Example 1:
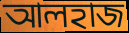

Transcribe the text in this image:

আলহাজ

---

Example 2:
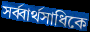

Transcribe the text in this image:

সর্ব্বার্থসাধিকে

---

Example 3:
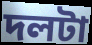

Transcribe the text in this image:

দলটা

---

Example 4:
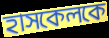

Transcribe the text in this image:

হাসকেলকে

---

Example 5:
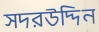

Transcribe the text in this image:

সদরউদ্দিন